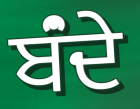
ਬਂੰਦੇ